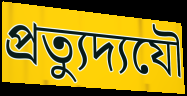
প্রত্যুদ্যযৌ